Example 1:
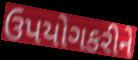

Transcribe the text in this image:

ઉપયોગકરીને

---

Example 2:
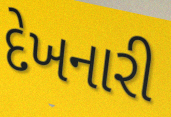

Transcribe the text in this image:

દેખનારી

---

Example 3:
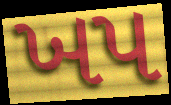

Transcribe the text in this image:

ખપ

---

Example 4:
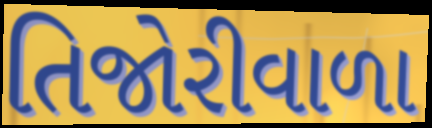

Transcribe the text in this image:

તિજોરીવાળા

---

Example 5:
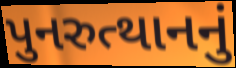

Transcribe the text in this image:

પુનરુત્થાનનું